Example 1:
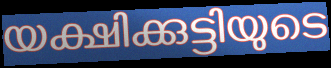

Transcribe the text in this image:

യക്ഷിക്കുട്ടിയുടെ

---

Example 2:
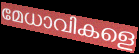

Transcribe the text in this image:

മേധാവികളെ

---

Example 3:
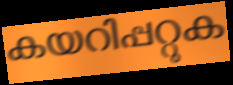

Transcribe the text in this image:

കയറിപ്പറ്റുക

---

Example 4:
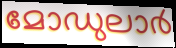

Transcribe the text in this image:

മോഡുലാർ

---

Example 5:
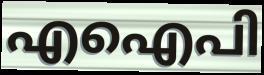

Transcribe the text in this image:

എഐപി